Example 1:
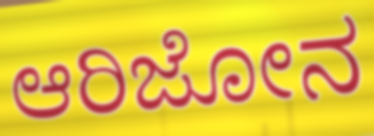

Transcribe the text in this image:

ಆರಿಜೋನ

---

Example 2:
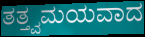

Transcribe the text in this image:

ತತ್ತ್ವಮಯವಾದ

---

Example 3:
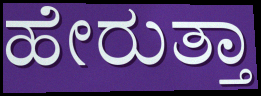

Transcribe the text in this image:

ಹೇರುತ್ತಾ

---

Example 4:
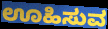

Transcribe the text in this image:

ಊಹಿಸುವ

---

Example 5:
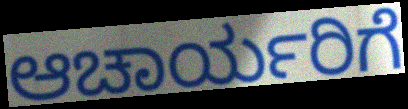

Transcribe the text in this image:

ಆಚಾರ್ಯರಿಗೆ